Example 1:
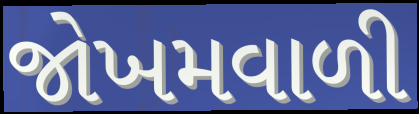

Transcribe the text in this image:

જોખમવાળી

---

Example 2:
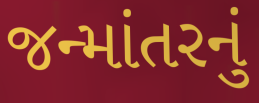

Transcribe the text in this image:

જન્માંતરનું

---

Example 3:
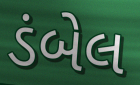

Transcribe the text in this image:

ડંબેલ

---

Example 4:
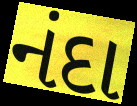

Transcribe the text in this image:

નંદા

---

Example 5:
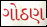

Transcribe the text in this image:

ગોઠણ